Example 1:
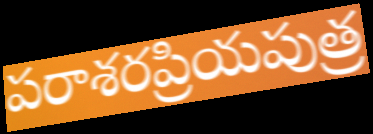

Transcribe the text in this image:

పరాశరప్రియపుత్ర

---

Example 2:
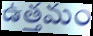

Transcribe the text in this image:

ఉత్తమం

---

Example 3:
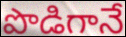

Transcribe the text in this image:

పొడిగానే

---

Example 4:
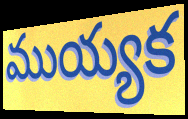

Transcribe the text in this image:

ముయ్యక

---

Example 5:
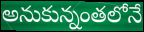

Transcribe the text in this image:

అనుకున్నంతలోనే